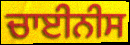
ਚਾਈਨੀਸ